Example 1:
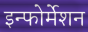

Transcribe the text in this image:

इन्फोर्मेशन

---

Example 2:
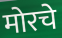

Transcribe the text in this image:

मोरचे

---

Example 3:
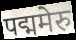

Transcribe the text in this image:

पद्ममेरु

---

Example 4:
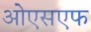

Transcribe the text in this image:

ओएसएफ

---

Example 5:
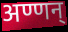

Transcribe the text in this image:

अण्णन्